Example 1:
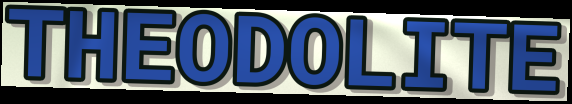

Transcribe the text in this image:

THEODOLITE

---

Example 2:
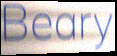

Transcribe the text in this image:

Beary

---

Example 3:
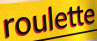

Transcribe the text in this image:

roulette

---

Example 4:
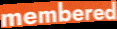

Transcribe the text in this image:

membered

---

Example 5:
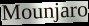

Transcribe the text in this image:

Mounjaro